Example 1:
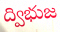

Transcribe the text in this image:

ద్విభుజ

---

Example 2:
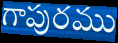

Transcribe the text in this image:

గాపురము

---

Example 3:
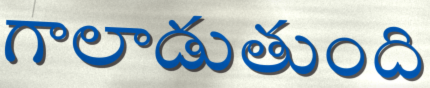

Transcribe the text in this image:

గాలాడుతుంది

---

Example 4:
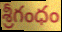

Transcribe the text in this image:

శ్రీగంధం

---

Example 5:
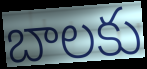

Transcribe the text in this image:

బాలకు